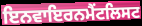
ਇਨਵਾਇਰਨਮੈਂਟਲਿਸਟ